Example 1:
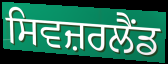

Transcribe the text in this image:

ਸਿਵਜ਼ਰਲੈਂਡ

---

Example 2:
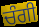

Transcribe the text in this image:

ਚੰਗੀ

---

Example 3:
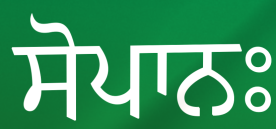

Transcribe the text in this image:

ਸੋਪਾਨਃ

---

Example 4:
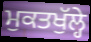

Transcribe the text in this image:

ਮੁਕਤਖੁੱਲ੍ਹੇ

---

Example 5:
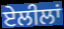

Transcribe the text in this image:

ਏਲੀਲਾਂ